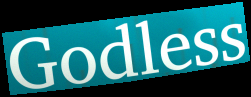
Godless